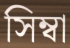
সিম্বা